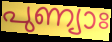
പുണ്യാഃ